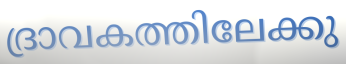
ദ്രാവകത്തിലേക്കു